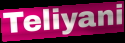
Teliyani